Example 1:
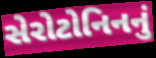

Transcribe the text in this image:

સેરોટોનિનનું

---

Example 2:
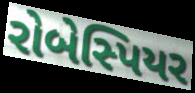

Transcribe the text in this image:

રોબેસ્પિયર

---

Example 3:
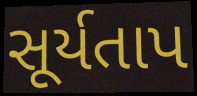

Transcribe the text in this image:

સૂર્યતાપ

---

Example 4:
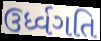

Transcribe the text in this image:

ઉર્ધ્વગતિ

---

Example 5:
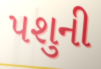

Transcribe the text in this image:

પશુની